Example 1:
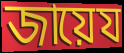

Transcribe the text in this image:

জায়েয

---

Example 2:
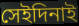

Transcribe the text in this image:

সেইদিনাই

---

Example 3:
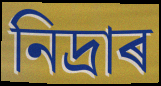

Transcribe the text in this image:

নিদ্ৰাৰ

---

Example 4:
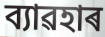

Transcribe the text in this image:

ব্যাৱহাৰ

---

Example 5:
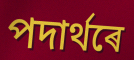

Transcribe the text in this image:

পদাৰ্থৰে